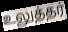
உலுத்தர்